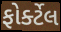
ફોર્ક્ટેલ